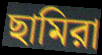
ছামিরা